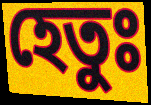
হেতুঃ